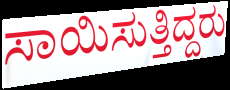
ಸಾಯಿಸುತ್ತಿದ್ದರು